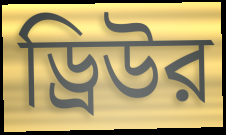
ড্রিউর